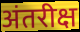
अंतरीक्ष